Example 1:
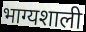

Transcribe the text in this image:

भाग्यशाली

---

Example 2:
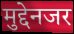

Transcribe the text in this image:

मुद्देनजर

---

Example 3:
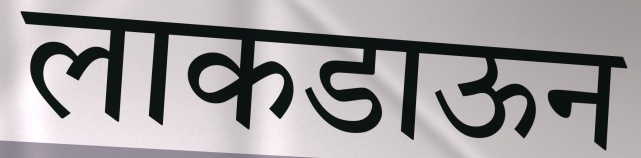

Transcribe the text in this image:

लाकडाऊन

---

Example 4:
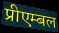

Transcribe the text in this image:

प्रीएम्बल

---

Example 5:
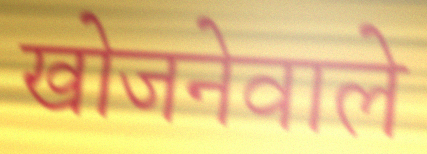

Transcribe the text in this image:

खोजनेवाले